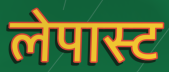
लेपास्ट